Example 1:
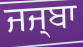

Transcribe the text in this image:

ਜਜ੍ਬਾ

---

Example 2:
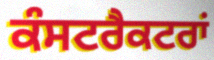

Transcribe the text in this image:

ਕੰਸਟਰੈਕਟਰਾਂ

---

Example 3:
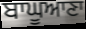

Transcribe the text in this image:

ਬਾਘੂਆਣਾ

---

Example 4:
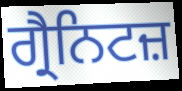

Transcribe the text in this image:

ਗ੍ਰੈਨਿਟਜ਼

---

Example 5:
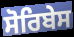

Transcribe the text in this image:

ਸੋਰਿਬੇਸ